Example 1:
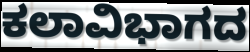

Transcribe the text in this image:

ಕಲಾವಿಭಾಗದ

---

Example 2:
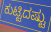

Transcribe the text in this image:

ಕುಟ್ಟಿದಷ್ಟು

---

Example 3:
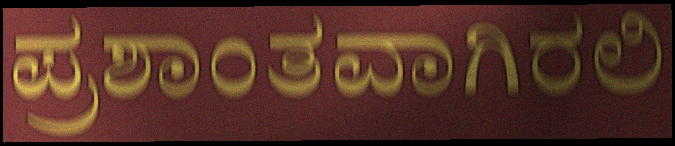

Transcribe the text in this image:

ಪ್ರಶಾಂತವಾಗಿರಲಿ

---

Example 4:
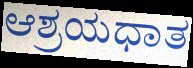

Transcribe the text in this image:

ಆಶ್ರಯಧಾತ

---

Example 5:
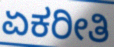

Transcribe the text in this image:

ಏಕರೀತಿ